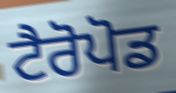
ਟੈਰੋਪੋਡ